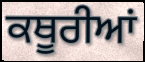
ਕਥੂਰੀਆਂ